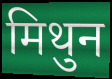
मिथुन